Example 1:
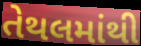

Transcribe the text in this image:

તેથલમાંથી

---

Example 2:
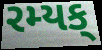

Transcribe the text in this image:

રમ્યક્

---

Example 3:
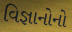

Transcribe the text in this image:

વિજ્ઞાનોનો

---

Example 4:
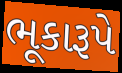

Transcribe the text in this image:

ભૂકારૂપે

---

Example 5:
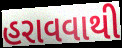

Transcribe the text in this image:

હરાવવાથી